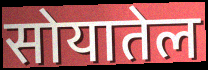
सोयातेल